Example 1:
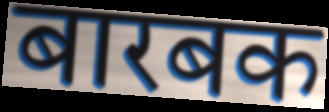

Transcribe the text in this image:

बारबक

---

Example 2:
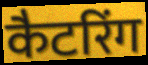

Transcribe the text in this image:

कैटरिंग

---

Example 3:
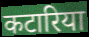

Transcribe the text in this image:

कटारिया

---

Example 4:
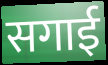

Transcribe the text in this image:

सगाई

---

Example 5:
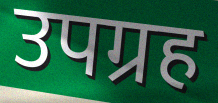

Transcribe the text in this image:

उपग्रह